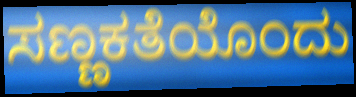
ಸಣ್ಣಕತೆಯೊಂದು